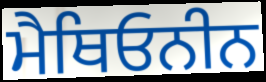
ਮੈਥਿਓਨੀਨ